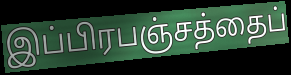
இப்பிரபஞ்சத்தைப்